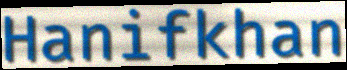
Hanifkhan